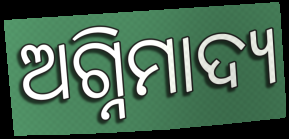
ଅଗ୍ନିମାଦ୍ୟ